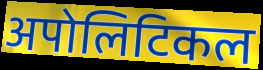
अपोलिटिकल